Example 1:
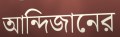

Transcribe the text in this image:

আন্দিজানের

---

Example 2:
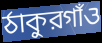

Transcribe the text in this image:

ঠাকুরগাঁও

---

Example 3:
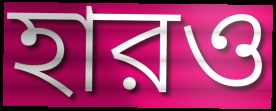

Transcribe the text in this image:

হারও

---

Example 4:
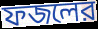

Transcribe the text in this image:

ফজলের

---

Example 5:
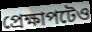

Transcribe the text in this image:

প্রেক্ষাপটেও